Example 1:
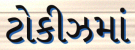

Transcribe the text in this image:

ટોકીઝમાં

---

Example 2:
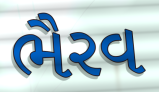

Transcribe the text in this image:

ભૈરવ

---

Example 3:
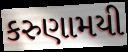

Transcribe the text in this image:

કરુણામયી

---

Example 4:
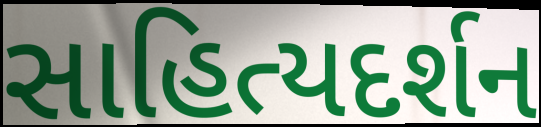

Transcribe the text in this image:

સાહિત્યદર્શન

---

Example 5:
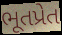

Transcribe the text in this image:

ભૂતપ્રેત